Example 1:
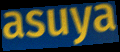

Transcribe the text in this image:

asuya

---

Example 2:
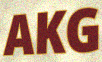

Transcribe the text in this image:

AKG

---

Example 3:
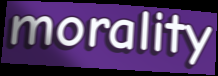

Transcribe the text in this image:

morality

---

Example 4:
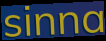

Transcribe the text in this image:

sinna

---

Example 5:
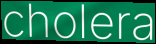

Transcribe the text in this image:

cholera